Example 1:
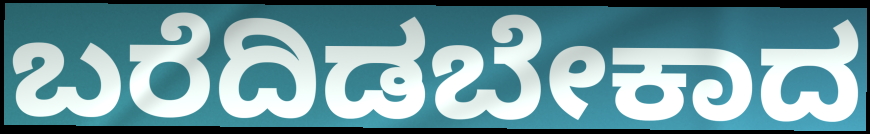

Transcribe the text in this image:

ಬರೆದಿಡಬೇಕಾದ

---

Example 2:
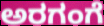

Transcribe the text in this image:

ಅರಗಂಗೆ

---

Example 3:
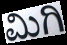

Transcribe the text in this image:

ಮಿಗಿ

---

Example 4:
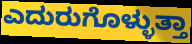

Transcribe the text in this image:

ಎದುರುಗೊಳ್ಳುತ್ತಾ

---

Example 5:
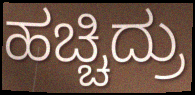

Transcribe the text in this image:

ಹಚ್ಚಿದ್ರು